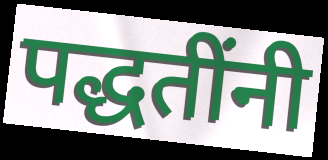
पद्धतींनी